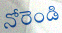
నోరెండి